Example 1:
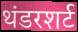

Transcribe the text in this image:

थंडरशर्ट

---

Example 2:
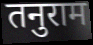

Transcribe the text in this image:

तनुराम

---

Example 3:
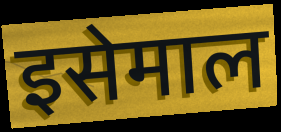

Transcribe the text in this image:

इसेमाल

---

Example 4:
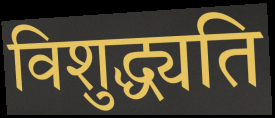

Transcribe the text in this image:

विशुद्ध्यति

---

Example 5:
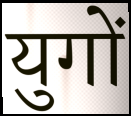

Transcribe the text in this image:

युगों